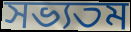
সভ্যতম